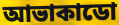
আভাকাডো